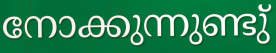
നോക്കുന്നുണ്ടു്